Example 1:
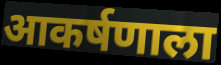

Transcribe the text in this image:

आकर्षणाला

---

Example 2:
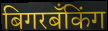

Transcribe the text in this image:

बिगरबँकिंग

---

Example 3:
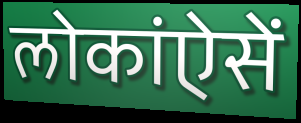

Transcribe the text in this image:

लोकांऐसें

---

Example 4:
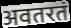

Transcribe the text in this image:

अवतरतं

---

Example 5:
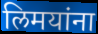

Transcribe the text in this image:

लिमयांना